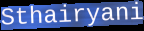
Sthairyani